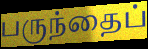
பருந்தைப்